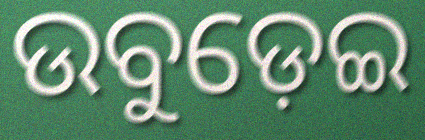
ଉବୁଡ଼େଇ